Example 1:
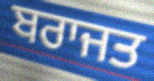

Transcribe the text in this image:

ਬਰਾਜਤ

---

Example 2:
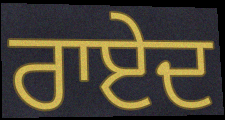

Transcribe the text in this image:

ਰਾਏਦ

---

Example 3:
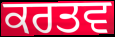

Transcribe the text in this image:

ਕਰਤਵ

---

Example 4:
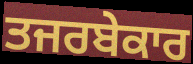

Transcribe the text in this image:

ਤਜਰਬੇਕਾਰ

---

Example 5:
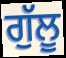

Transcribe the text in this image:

ਗੁੱਲੂ